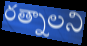
రత్నాలని